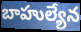
బాహుల్యేన